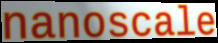
nanoscale